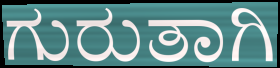
ಗುರುತಾಗಿ